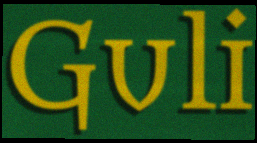
Guli